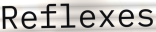
Reflexes